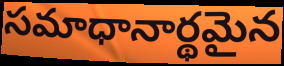
సమాధానార్థమైన